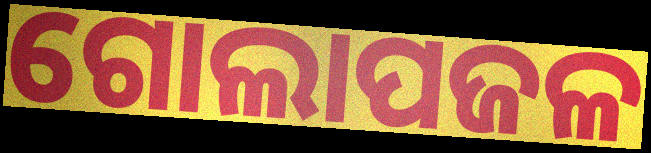
ଗୋଲାପଜଳ